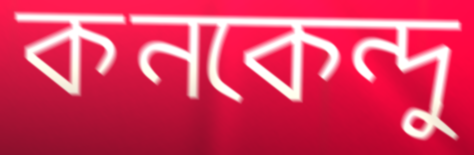
কনকেন্দু